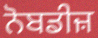
ਨੋਬਡੀਜ਼